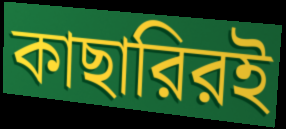
কাছারিরই